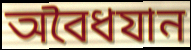
অবৈধযান